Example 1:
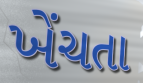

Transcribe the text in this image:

ખેંચતા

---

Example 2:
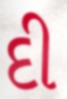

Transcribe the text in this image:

દી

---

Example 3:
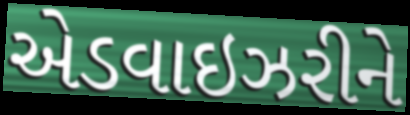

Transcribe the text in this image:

એડવાઇઝરીને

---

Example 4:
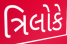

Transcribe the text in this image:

ત્રિલોકે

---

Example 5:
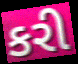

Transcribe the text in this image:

કરી